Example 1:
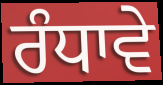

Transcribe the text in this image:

ਰੰਧਾਵੇ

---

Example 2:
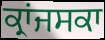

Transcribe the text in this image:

ਕ੍ਰਾਂਜਸਕਾ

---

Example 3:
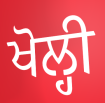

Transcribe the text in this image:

ਖੋਲ੍ਹੀ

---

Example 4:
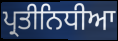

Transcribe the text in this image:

ਪ੍ਰਤੀਨਿਧੀਆ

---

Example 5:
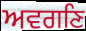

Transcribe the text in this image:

ਅਵਗਣਿ